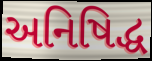
અનિષિદ્ધ